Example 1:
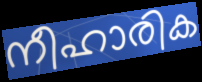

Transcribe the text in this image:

നീഹാരിക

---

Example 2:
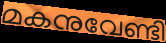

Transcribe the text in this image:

മകനുവേണ്ടി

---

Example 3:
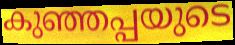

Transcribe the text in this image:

കുഞ്ഞപ്പയുടെ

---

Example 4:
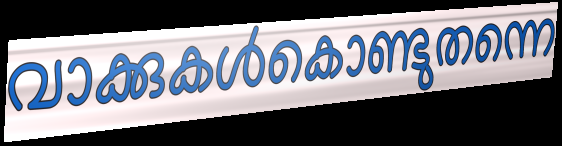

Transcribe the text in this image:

വാക്കുകൾകൊണ്ടുതന്നെ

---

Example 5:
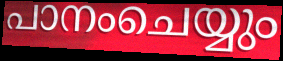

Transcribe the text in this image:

പാനംചെയ്യും